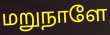
மறுநாளே